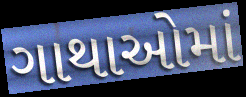
ગાથાઓમાં